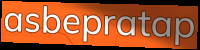
asbepratap